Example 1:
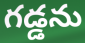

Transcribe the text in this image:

గడ్డను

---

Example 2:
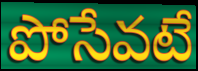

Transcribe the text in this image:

పోసేవటే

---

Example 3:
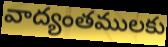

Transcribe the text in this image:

వాద్యంతములకు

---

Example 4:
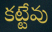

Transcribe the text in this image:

కట్టేవు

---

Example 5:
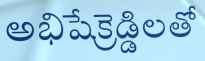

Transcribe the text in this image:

అభిషేక్రెడ్డిలతో